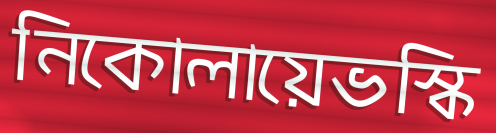
নিকোলায়েভস্কি